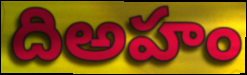
దిఅహం